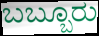
ಬಬ್ಬೂರು